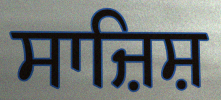
ਸਾਜ਼ਿਸ਼